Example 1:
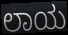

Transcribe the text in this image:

ಲಾಯ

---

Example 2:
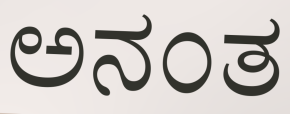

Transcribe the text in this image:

ಅನಂತ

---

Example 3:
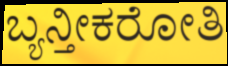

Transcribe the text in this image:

ಬ್ಯನ್ತೀಕರೋತಿ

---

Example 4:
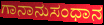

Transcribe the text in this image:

ಗಾನಾನುಸಂಧಾನ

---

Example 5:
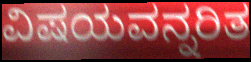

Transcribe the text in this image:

ವಿಷಯವನ್ನರಿತ